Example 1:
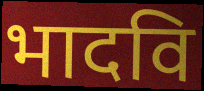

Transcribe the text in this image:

भादवि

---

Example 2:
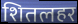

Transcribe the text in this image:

शितलहर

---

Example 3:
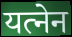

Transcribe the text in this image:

यत्नेन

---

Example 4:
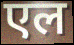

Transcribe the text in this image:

एल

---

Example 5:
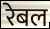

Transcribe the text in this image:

रेबल